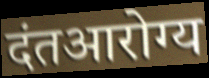
दंतआरोग्य